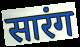
सारंग